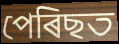
পেৰিছত